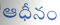
ఆధీనం